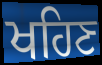
ਖਹਿਣ